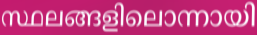
സ്ഥലങ്ങളിലൊന്നായി